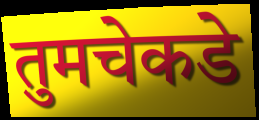
तुमचेकडे